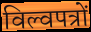
विल्वपत्रों